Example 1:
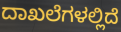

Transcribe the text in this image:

ದಾಖಲೆಗಳಲ್ಲಿದೆ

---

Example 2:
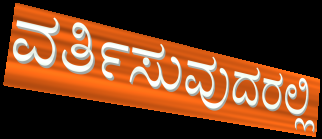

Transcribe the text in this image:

ವರ್ತಿಸುವುದರಲ್ಲಿ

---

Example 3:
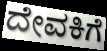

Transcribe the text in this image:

ದೇವಕಿಗೆ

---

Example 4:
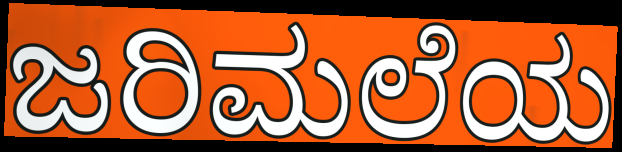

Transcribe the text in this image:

ಜರಿಮಲೆಯ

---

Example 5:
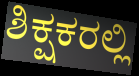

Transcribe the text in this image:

ಶಿಕ್ಷಕರಲ್ಲಿ